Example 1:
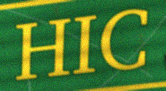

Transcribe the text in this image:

HIC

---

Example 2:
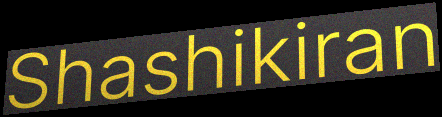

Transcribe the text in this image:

Shashikiran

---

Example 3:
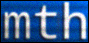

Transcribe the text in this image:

mth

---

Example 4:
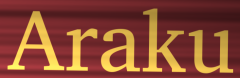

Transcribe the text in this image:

Araku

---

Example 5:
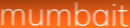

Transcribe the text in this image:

mumbait